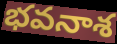
భవనాశ